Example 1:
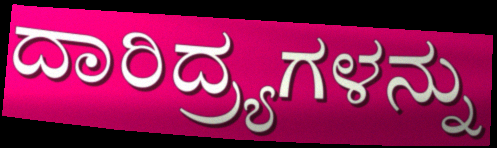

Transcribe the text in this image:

ದಾರಿದ್ರ್ಯಗಳನ್ನು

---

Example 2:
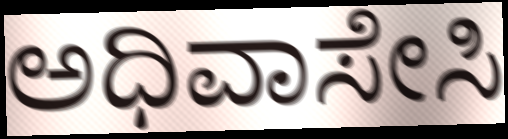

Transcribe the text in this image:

ಅಧಿವಾಸೇಸಿ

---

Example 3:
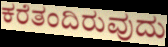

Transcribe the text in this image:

ಕರೆತಂದಿರುವುದು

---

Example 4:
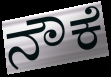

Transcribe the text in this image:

ನೌಕೆ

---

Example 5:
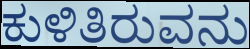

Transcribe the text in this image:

ಕುಳಿತಿರುವನು